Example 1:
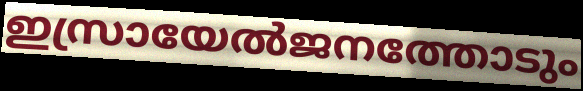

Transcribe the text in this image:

ഇസ്രായേൽജനത്തോടും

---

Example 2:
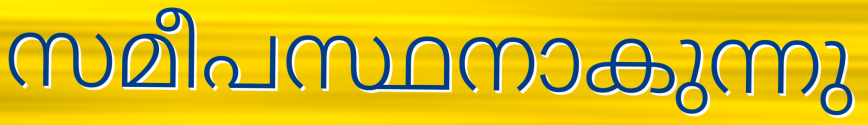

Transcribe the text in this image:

സമീപസ്ഥനാകുന്നു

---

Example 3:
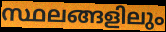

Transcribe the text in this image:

സ്ഥലങ്ങളിലും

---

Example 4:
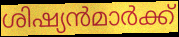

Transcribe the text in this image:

ശിഷ്യൻമാർക്ക്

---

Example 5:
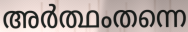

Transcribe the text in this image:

അർത്ഥംതന്നെ